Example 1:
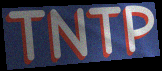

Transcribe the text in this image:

TNTP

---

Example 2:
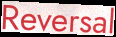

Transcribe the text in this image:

Reversal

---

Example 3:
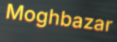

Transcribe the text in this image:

Moghbazar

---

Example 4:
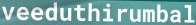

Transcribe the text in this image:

veeduthirumbal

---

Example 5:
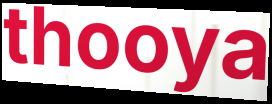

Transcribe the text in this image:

thooya